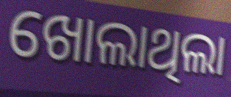
ଖୋଲାଥିଲା